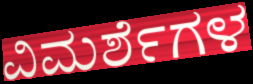
ವಿಮರ್ಶೆಗಳ